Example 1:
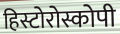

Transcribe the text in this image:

हिस्टोरोस्कोपी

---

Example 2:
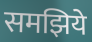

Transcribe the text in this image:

समझिये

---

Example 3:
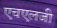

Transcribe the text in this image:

एचएलजी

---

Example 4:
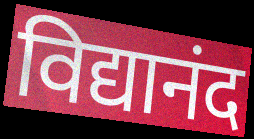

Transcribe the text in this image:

विद्यानंद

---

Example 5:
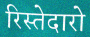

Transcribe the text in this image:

रिस्तेदारो